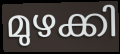
മുഴക്കി